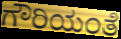
ಗೌರಿಯಂತೆ